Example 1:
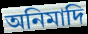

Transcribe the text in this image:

অনিমাদি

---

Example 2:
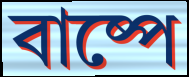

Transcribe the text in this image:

বাষ্পে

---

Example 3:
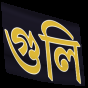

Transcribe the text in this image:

গুলি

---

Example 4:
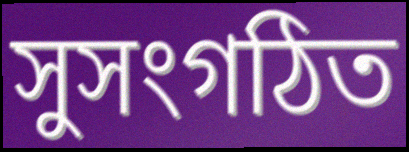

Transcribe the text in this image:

সুসংগঠিত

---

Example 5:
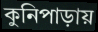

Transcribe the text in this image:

কুনিপাড়ায়